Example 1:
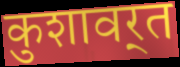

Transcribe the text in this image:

कुशावर्त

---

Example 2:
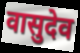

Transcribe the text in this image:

वासुदेव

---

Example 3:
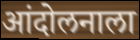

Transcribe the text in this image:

आंदोलनाला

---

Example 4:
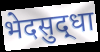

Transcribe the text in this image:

भेदसुद्धा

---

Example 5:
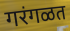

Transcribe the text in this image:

गरंगळत